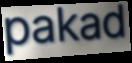
pakad